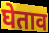
घेताव